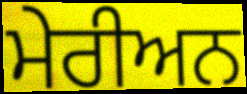
ਮੇਰੀਅਨ